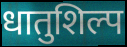
धातुशिल्प